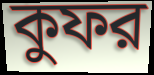
কুফর